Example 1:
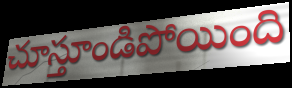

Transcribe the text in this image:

చూస్తూండిపోయింది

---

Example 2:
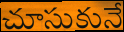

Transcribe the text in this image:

చూసుకునే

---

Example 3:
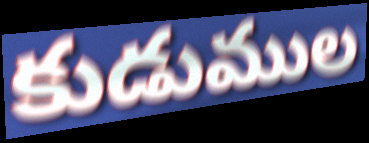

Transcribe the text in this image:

కుడుముల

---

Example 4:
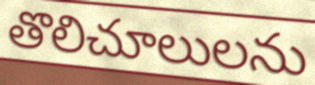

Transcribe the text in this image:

తొలిచూలులను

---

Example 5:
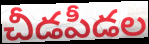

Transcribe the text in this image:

చీడపీడల